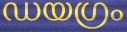
ഡയഗ്രം